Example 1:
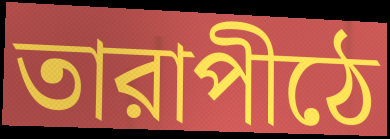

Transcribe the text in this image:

তারাপীঠে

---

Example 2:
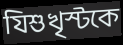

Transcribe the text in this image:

যিশুখৃস্টকে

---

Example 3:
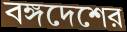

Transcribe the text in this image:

বঙ্গদেশের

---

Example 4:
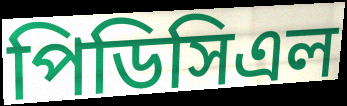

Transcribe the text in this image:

পিডিসিএল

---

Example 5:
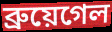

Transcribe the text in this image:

ব্রুয়েগেল